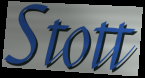
Stott